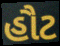
હૌટ